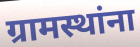
ग्रामस्थांना